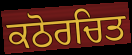
ਕਠੋਰਚਿਤ